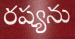
రష్యను